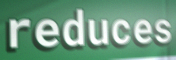
reduces